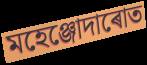
মহেঞ্জোদাৰোত